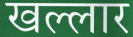
खल्लार